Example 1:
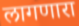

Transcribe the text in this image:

लागणारा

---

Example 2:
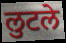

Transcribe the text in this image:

लुटले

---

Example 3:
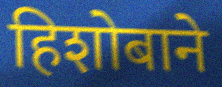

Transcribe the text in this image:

हिशोबाने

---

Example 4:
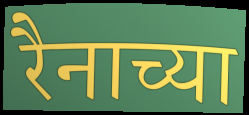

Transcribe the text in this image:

रैनाच्या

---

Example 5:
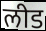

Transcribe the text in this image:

लीड